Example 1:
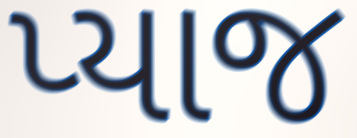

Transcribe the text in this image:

પ્યાજ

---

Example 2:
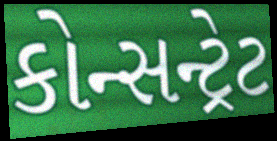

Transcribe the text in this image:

કોન્સન્ટ્રેટ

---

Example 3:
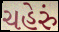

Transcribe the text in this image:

ચહેરું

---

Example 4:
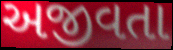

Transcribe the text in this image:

અજીવતા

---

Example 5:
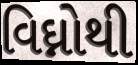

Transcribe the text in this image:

વિઘ્નોથી